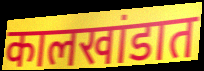
कालखांडात